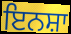
ਇਨਸ਼ਾ